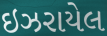
ઇઝરાયેલ